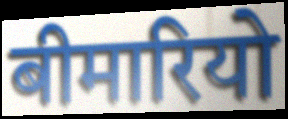
बीमारियो